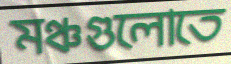
মঞ্চগুলোতে